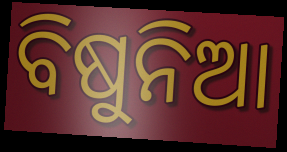
ବିଷୁନିଆ